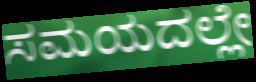
ಸಮಯದಲ್ಲೇ